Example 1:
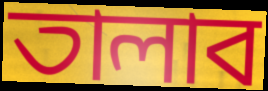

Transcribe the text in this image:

তালাব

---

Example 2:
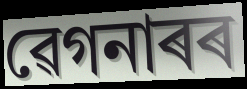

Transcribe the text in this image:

ৱেগনাৰৰ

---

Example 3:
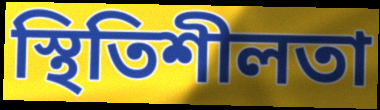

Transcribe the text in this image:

স্থিতিশীলতা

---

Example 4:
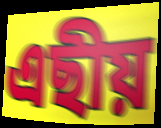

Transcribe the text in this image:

এছীয়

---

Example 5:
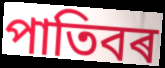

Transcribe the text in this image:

পাতিবৰ